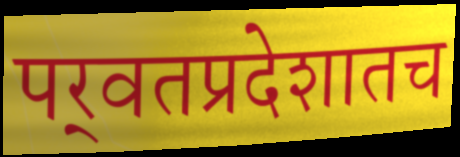
पर्वतप्रदेशातच